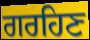
ਗਰਹਿਣ